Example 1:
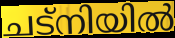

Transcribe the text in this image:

ചട്നിയിൽ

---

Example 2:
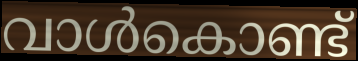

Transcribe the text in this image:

വാൾകൊണ്ട്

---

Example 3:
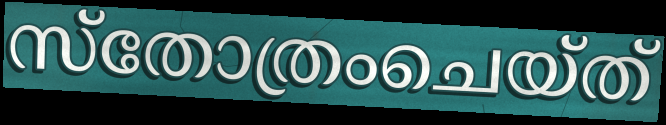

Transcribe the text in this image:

സ്തോത്രംചെയ്ത്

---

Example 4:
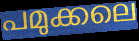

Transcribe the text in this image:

പമുക്കലെ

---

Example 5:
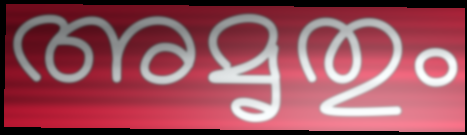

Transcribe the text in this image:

അമൃതും